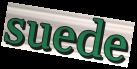
suede